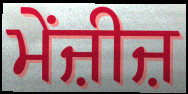
ਮੇਂਜ਼ੀਜ਼